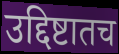
उद्दिष्टातच